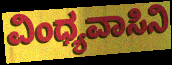
ವಿಂಧ್ಯವಾಸಿನಿ